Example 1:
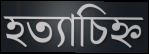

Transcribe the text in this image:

হত্যাচিহ্ন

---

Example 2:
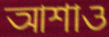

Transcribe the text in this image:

আশাও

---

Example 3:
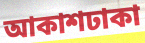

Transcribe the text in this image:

আকাশঢাকা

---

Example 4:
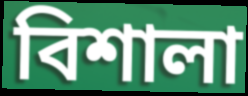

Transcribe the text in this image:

বিশালা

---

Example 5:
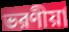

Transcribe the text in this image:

ভরণীয়া